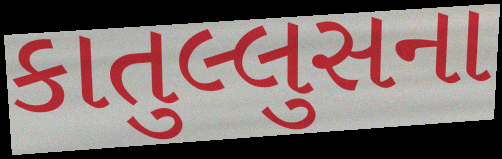
કાતુલ્લુસના